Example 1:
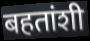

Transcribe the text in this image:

बहतांशी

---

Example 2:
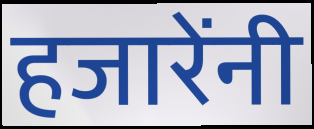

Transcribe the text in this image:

हजारेंनी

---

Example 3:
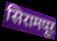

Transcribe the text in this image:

सिरामपूर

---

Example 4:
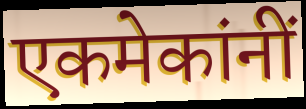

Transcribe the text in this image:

एकमेकांनीं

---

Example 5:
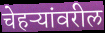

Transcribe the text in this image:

चेहऱ्यांवरील